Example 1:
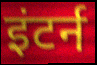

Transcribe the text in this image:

इंटर्न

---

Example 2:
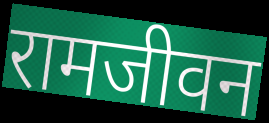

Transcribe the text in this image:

रामजीवन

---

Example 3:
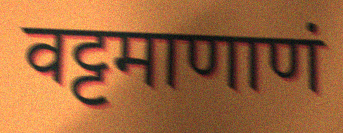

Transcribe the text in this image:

वट्टमाणाणं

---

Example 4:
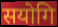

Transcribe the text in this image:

सयोगि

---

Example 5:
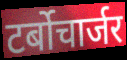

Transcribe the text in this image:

टर्बोचार्जर